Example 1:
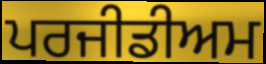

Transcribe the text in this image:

ਪਰਜੀਡੀਅਮ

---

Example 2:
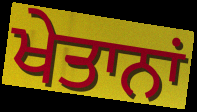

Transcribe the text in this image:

ਖੇਤਾਨਾਂ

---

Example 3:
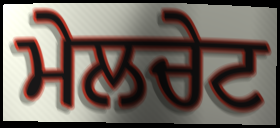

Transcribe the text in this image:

ਮੇਲਚੇਟ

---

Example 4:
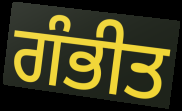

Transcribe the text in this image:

ਗੰਭੀਤ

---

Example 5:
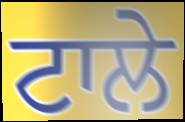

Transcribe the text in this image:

ਟਾਲੇ